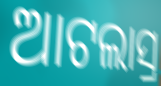
ଆଟଲାସ୍ର